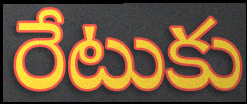
రేటుకు